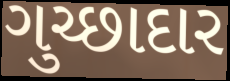
ગુચ્છાદાર